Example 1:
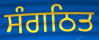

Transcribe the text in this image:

ਸੰਗਠਿਤ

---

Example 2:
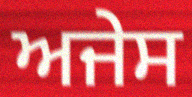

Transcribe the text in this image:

ਅਜੇਸ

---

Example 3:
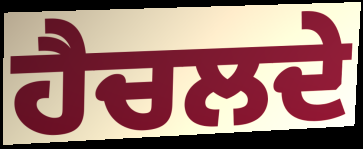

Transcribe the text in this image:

ਹੈਚਲਦੇ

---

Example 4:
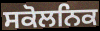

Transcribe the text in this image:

ਸਕੋਲਨਿਕ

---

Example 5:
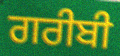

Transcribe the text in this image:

ਗਰੀਬੀ